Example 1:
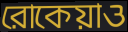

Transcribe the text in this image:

রোকেয়াও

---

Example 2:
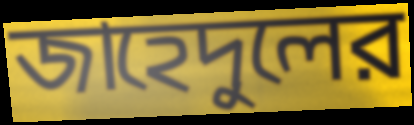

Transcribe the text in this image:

জাহেদুলের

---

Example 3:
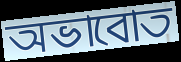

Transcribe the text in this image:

অভাবোত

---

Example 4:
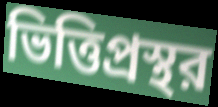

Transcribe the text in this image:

ভিত্তিপ্রস্থর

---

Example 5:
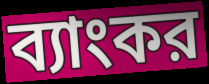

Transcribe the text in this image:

ব্যাংকর